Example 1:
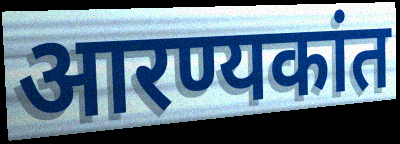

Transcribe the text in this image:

आरण्यकांत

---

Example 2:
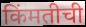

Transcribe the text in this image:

किंमतीची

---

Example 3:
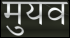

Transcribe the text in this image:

मुयव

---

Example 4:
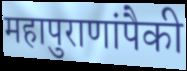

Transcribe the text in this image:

महापुराणांपैकी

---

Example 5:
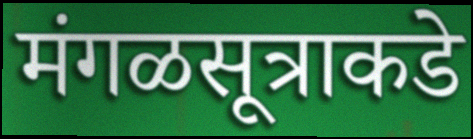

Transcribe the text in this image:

मंगळसूत्राकडे